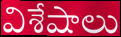
విశేషాలు